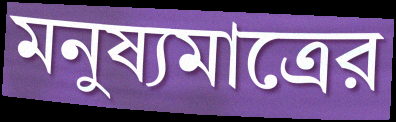
মনুষ্যমাত্রের